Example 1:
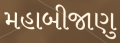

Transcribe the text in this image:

મહાબીજાણુ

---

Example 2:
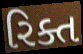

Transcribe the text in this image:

રિક્ત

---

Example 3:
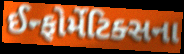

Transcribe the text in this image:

ઈન્ફોર્મેટિક્સના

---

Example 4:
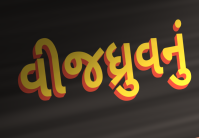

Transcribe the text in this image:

વીજધ્રુવનું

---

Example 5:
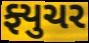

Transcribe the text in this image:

ફ્યુચર